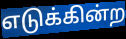
எடுக்கின்ற